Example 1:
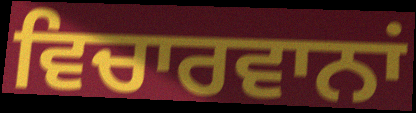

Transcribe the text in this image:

ਵਿਚਾਰਵਾਨਾਂ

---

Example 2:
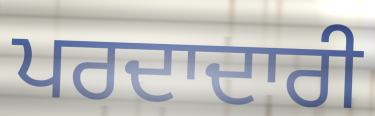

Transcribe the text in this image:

ਪਰਦਾਦਾਰੀ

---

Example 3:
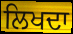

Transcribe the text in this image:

ਲਿਖਦਾ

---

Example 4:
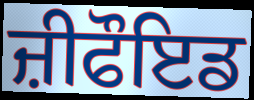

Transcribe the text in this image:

ਜ਼ੀਫੌਇਡ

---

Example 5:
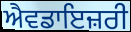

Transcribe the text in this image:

ਐਵਡਾਇਜ਼ਰੀ